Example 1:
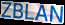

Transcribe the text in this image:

ZBLAN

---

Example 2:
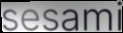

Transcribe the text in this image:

sesami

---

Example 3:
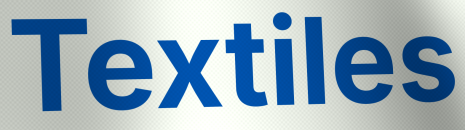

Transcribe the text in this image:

Textiles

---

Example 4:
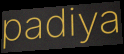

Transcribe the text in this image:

padiya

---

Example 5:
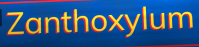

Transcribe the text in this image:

Zanthoxylum